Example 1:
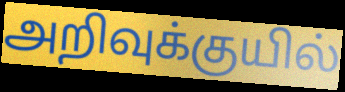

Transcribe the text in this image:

அறிவுக்குயில்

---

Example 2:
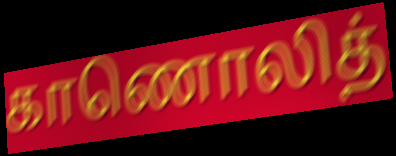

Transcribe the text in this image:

காணொலித்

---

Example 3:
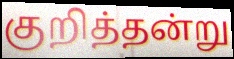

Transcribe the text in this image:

குறித்தன்று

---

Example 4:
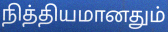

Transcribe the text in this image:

நித்தியமானதும்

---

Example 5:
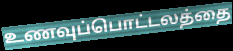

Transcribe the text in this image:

உணவுப்பொட்டலத்தை